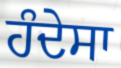
ਹੰਦੇਸਾ